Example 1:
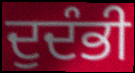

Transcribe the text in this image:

ਦੁਦੰਭੀ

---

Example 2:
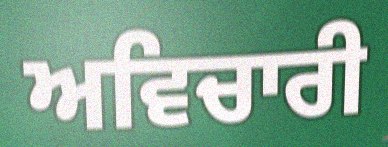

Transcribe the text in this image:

ਅਵਿਚਾਰੀ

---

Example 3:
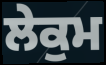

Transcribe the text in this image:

ਲੇਕੁਮ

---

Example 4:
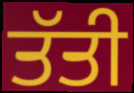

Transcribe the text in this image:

ਤੱਤੀ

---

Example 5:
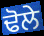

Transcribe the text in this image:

ਢੋਲੇ